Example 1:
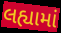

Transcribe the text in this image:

લહ્યામાં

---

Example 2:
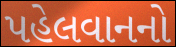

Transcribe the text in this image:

પહેલવાનનો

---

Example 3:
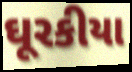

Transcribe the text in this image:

ઘૂરકીયા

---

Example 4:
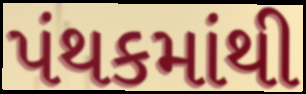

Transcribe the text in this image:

પંથકમાંથી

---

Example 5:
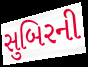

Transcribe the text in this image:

સુબિરની